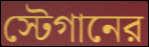
স্টেগানের